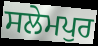
ਸਲੇਮਪੁਰ